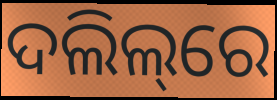
ଦଲିଲ୍‌ରେ